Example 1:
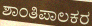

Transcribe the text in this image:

ಶಾಂತಿಪಾಲಕರ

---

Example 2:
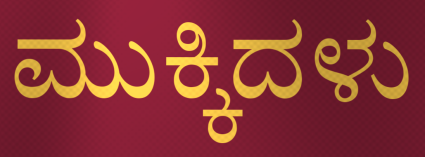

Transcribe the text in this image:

ಮುಕ್ಕಿದಳು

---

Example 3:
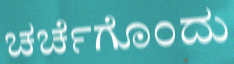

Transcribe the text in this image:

ಚರ್ಚೆಗೊಂದು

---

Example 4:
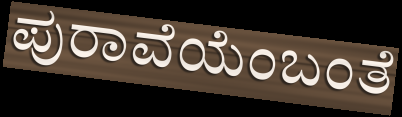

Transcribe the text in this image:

ಪುರಾವೆಯೆಂಬಂತೆ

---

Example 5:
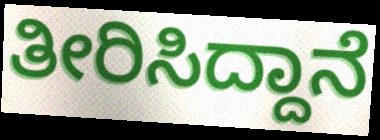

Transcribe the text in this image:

ತೀರಿಸಿದ್ದಾನೆ